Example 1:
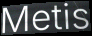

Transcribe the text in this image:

Metis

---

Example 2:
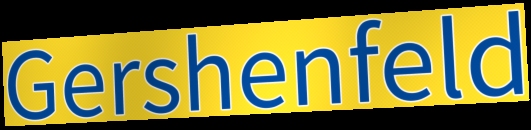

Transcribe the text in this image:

Gershenfeld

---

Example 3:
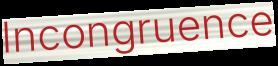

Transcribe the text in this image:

Incongruence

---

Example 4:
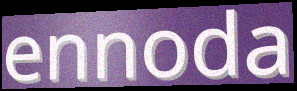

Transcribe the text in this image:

ennoda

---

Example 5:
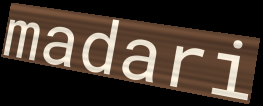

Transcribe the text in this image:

madari